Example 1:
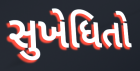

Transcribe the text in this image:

સુખેધિતો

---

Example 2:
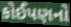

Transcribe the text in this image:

કોઈપણનો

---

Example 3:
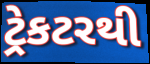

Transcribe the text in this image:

ટ્રેકટરથી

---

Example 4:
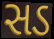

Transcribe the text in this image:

સડ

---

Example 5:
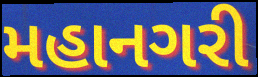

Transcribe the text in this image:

મહાનગરી